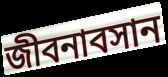
জীবনাবসান